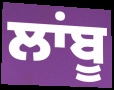
ਲਾਂਬੂ